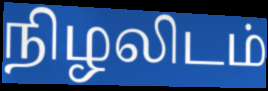
நிழலிடம்